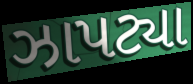
ઝાપટ્યા